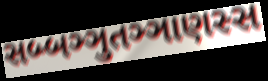
સબ્બઞ્ઞુતઞ્ઞાણસ્સ